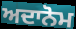
ਅਦਾਨੋਮ